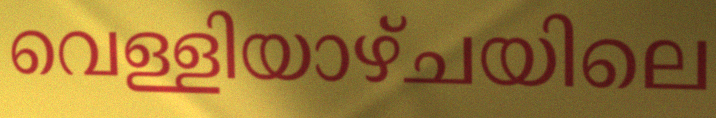
വെള്ളിയാഴ്ചയിലെ